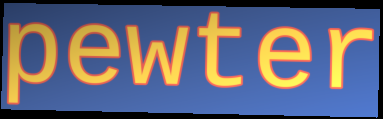
pewter